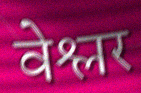
वेश्लर